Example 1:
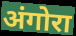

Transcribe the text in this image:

अंगोरा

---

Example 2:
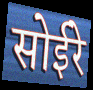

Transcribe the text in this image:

सोईरे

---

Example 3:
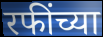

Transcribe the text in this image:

रफींच्या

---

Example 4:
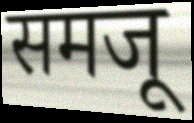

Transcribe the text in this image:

समजू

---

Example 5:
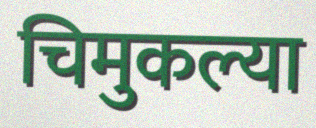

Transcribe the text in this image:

चिमुकल्या